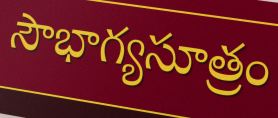
సౌభాగ్యసూత్రం